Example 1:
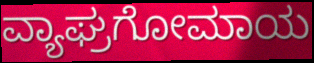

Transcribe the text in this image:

ವ್ಯಾಘ್ರಗೋಮಾಯ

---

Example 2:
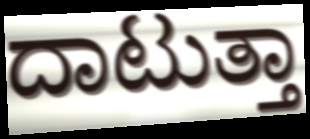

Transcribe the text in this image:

ದಾಟುತ್ತಾ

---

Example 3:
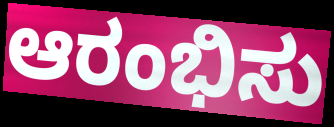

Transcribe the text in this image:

ಆರಂಭಿಸು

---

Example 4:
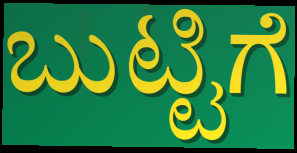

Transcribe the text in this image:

ಬುಟ್ಟಿಗೆ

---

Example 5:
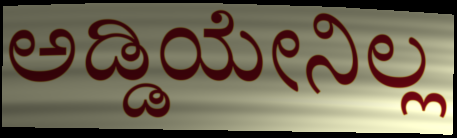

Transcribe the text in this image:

ಅಡ್ಡಿಯೇನಿಲ್ಲ